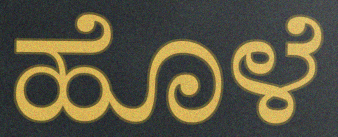
ಹೊಳೆ